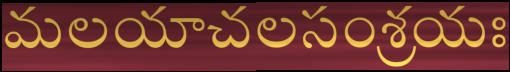
మలయాచలసంశ్రయః